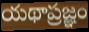
యథాప్రజ్ఞం